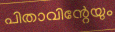
പിതാവിന്റേയും